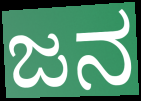
ಜನ